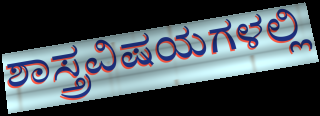
ಶಾಸ್ತ್ರವಿಷಯಗಳಲ್ಲಿ